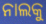
ନାଲକୁ